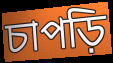
চাপড়ি